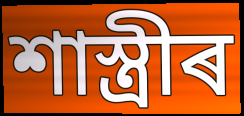
শাস্ত্ৰীৰ